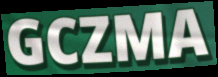
GCZMA